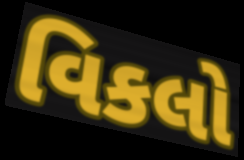
વિકલો